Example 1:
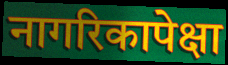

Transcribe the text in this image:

नागरिकापेक्षा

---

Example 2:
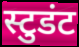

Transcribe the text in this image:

स्टुडंट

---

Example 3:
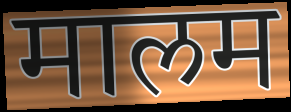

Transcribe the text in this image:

मालम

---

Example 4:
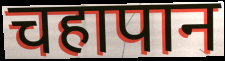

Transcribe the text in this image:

चहापान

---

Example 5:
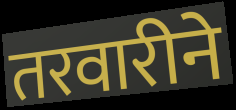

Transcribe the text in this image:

तरवारीने